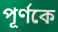
পূর্ণকে